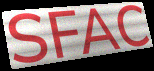
SFAC